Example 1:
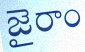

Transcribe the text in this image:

జైరాం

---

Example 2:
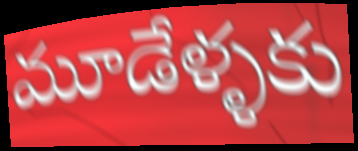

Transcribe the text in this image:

మూడేళ్ళకు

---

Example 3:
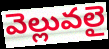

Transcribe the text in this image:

వెల్లువలై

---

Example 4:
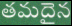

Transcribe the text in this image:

తమదైన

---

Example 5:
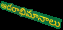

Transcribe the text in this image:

ఆదరాభిమానాలు